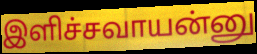
இளிச்சவாயன்னு